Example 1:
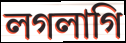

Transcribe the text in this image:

লগলাগি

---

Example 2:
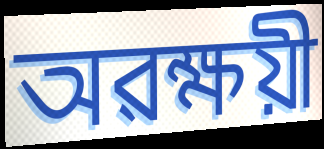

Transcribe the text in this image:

অৱক্ষয়ী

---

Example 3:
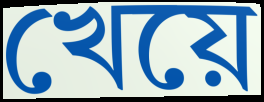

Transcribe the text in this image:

খেয়ে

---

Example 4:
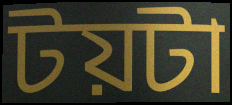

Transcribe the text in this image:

টয়টা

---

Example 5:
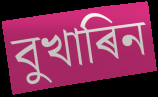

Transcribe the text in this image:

বুখাৰিন